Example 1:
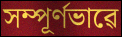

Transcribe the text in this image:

সম্পূৰ্ণভাৱে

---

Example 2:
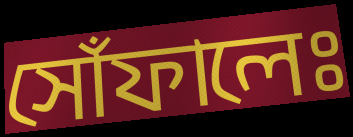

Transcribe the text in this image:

সোঁফালেঃ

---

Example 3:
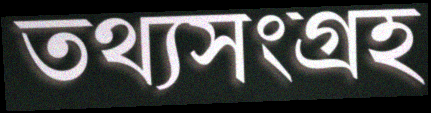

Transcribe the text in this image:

তথ্যসংগ্ৰহ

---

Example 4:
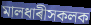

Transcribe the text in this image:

মালধাৰীসকলক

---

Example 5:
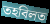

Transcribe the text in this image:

তহবিলত